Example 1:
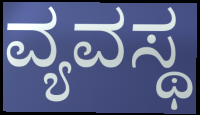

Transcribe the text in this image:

ವ್ಯವಸ್ಥ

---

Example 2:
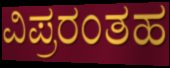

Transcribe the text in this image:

ವಿಪ್ರರಂತಹ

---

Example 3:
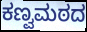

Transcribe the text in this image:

ಕಣ್ವಮಠದ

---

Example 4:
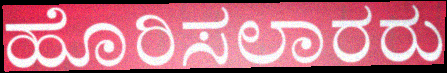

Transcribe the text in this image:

ಹೊರಿಸಲಾರರು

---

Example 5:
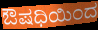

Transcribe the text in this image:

ಔಷಧಿಯಿಂದ